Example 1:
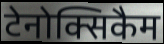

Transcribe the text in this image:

टेनोक्सिकैम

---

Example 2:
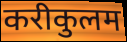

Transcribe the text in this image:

करीकुलम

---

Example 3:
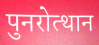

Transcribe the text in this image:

पुनरोत्थान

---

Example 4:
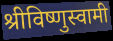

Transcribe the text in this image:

श्रीविष्णुस्वामी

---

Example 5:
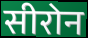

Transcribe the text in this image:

सीरोन